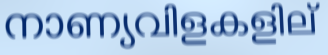
നാണ്യവിളകളില്